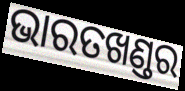
ଭାରତଖଣ୍ଡର